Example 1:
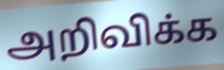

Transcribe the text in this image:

அறிவிக்க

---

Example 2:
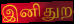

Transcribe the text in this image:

இனிதுற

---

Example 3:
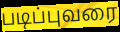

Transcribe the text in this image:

படிப்புவரை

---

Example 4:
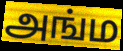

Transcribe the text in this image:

அங்ம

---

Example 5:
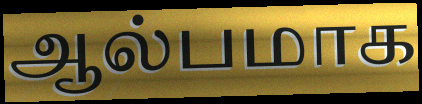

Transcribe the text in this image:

ஆல்பமாக